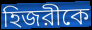
হিজরীকে